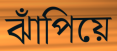
ঝাঁপিয়ে